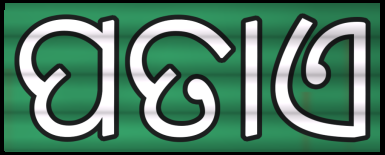
ପତାଏ